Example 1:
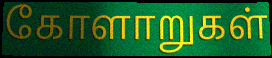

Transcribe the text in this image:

கோளாறுகள்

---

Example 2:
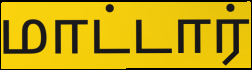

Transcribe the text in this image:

மாட்டார்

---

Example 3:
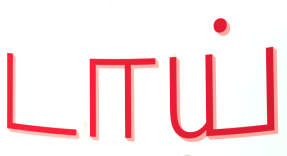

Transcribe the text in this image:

டாய்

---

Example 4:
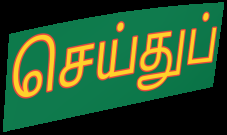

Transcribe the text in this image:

செய்துப்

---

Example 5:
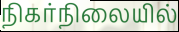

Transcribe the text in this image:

நிகர்நிலையில்